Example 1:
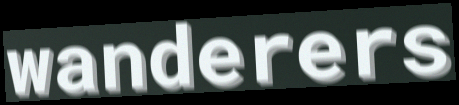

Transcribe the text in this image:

wanderers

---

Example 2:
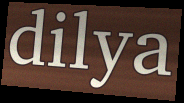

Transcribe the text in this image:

dilya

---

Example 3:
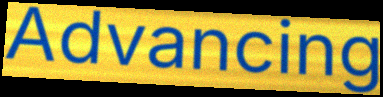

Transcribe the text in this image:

Advancing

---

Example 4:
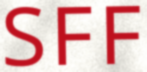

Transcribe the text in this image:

SFF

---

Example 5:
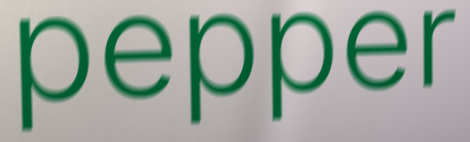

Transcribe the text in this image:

pepper